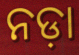
ନଡ଼ା